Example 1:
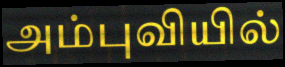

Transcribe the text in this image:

அம்புவியில்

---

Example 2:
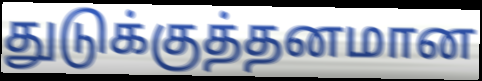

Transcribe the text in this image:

துடுக்குத்தனமான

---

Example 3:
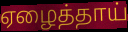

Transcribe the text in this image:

ஏழைத்தாய்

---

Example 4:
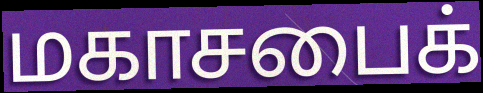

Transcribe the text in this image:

மகாசபைக்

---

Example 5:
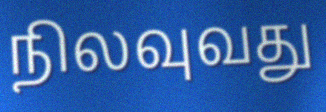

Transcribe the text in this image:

நிலவுவது